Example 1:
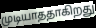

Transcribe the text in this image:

முடியாததாகிறது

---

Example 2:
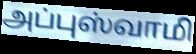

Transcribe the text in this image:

அப்புஸ்வாமி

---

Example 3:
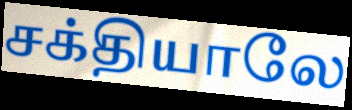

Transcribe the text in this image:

சக்தியாலே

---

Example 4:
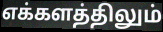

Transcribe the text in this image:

எக்களத்திலும்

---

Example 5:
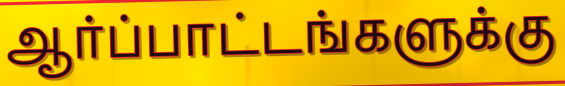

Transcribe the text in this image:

ஆர்ப்பாட்டங்களுக்கு